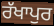
ਰੱਖਾਪੁਰ